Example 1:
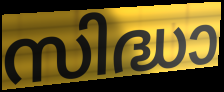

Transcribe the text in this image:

സിദ്ധാ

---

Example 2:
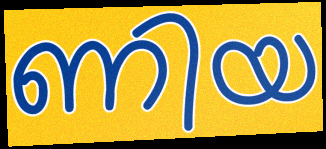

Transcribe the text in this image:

ണിയ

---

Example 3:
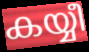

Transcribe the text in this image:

കയ്യീ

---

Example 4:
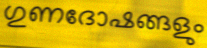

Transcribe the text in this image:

ഗുണദോഷങ്ങളും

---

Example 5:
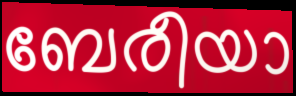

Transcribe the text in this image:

ബേരീയാ